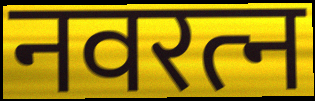
नवरत्‍न